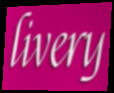
livery